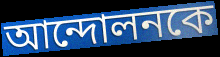
আন্দোলনকে